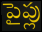
పైప్లు